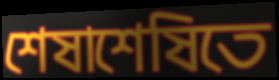
শেষাশেষিতে